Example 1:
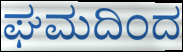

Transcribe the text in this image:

ಘಮದಿಂದ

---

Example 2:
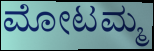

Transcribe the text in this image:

ಮೋಟಮ್ಮ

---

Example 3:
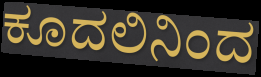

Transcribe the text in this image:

ಕೂದಲಿನಿಂದ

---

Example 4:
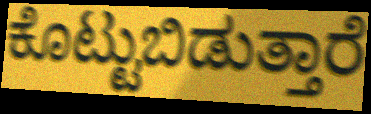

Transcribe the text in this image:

ಕೊಟ್ಟುಬಿಡುತ್ತಾರೆ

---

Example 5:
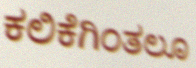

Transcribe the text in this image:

ಕಲಿಕೆಗಿಂತಲೂ